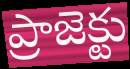
ప్రాజెక్టు